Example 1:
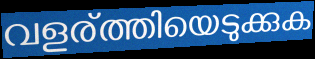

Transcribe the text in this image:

വളര്ത്തിയെടുക്കുക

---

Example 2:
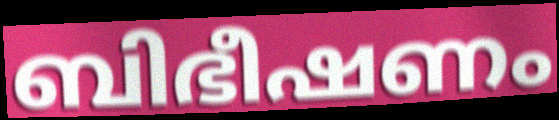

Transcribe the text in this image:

ബിഭീഷണം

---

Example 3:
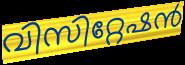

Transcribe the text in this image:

വിസിറ്റേഷൻ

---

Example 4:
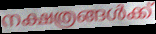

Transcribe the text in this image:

നക്ഷത്രങ്ങൾക്ക്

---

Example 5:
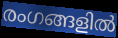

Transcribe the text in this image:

രംഗങ്ങളിൽ